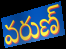
వరుణ్